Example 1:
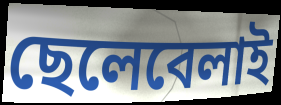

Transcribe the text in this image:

ছেলেবেলাই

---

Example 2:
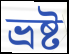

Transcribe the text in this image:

ভ্রষ্ট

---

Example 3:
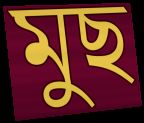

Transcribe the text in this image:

মুছ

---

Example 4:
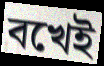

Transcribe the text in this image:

বখেই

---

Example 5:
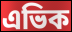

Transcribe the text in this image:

এভিক